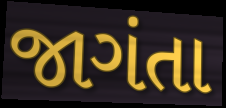
જાગંતા